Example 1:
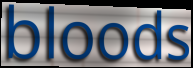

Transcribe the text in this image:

bloods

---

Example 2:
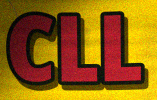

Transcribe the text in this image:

CLL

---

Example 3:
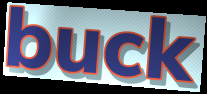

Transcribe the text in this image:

buck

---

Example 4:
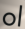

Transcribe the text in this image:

ol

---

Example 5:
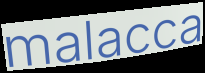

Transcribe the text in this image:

malacca